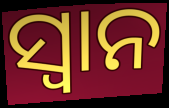
ସ୍ୱାନ